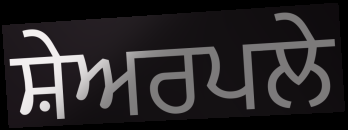
ਸ਼ੇਅਰਪਲੇ